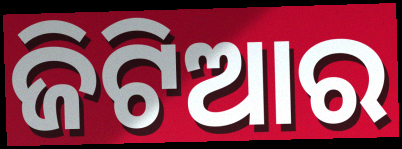
ଜିଟିଆର